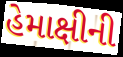
હેમાક્ષીની